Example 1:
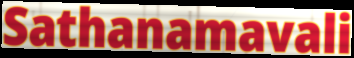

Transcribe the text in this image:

Sathanamavali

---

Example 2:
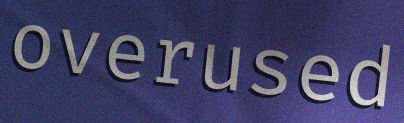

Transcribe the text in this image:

overused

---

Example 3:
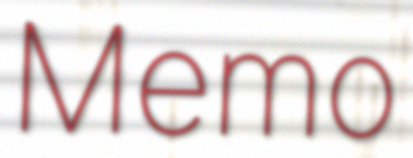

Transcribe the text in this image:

Memo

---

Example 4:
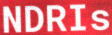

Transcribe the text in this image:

NDRIs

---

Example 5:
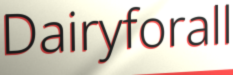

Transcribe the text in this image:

Dairyforall